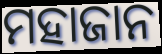
ମହାଜାନ